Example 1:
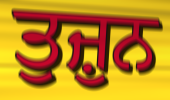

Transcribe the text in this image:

ਤੁਜ਼ੁਨ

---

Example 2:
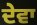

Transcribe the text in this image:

ਦੇਵਾ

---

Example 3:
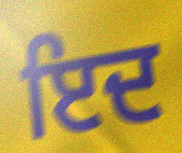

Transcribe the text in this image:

ਇਦ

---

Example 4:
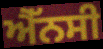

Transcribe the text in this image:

ਐੱਨਸੀ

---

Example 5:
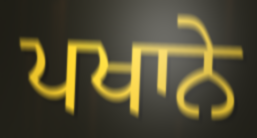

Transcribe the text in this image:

ਪਖਾਨੇ